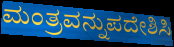
ಮಂತ್ರವನ್ನುಪದೇಶಿಸಿ